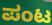
ಪಂಟ